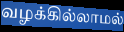
வழக்கில்லாமல்